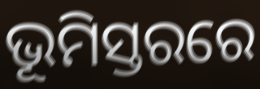
ଭୂମିସ୍ତରରେ